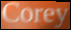
Corey